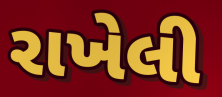
રાખેલી